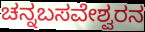
ಚನ್ನಬಸವೇಶ್ವರನ